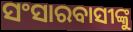
ସଂସାରବାସୀଙ୍କୁ